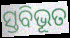
ସ୍ତବିଭୂତ